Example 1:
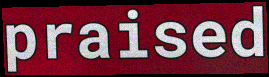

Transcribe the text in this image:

praised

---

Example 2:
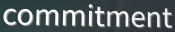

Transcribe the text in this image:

commitment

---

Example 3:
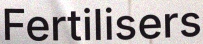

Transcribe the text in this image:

Fertilisers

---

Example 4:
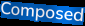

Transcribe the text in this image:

Composed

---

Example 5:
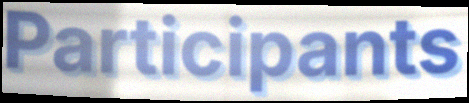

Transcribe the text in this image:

Participants